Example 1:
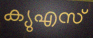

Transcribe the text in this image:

ക്യുഎസ്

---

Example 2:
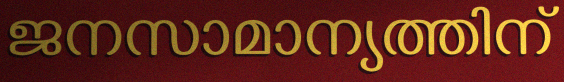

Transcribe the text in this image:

ജനസാമാന്യത്തിന്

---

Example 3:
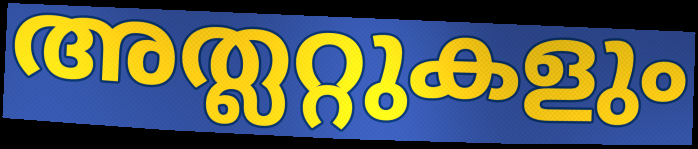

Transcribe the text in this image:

അത്ലറ്റുകളും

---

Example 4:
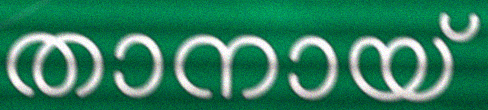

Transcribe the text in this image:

താനായ്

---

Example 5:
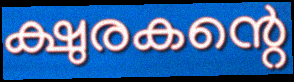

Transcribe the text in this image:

ക്ഷുരകന്റെ